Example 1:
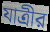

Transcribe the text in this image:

যাত্রীর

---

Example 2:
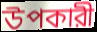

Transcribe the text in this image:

উপকারী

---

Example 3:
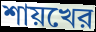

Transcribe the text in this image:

শায়খের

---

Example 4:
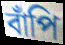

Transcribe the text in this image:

বাঁপি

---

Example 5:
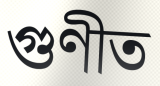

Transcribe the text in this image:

গুণীত